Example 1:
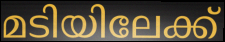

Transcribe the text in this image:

മടിയിലേക്ക്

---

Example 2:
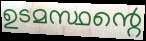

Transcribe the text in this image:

ഉടമസ്ഥന്റെ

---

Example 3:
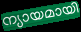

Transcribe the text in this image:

ന്യായമായി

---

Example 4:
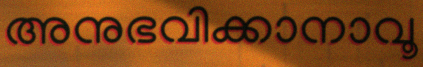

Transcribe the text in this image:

അനുഭവിക്കാനാവൂ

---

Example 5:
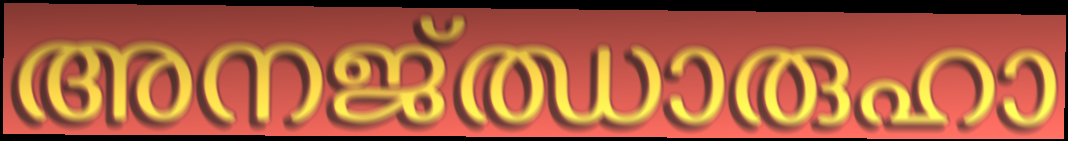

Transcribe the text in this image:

അനജ്ഝാരുഹാ